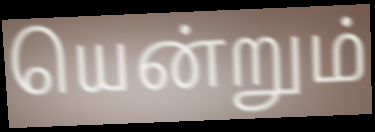
யென்றும்